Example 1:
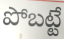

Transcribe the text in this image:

పోబట్టే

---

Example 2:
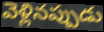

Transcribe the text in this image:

వెళ్లినప్పుడు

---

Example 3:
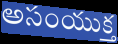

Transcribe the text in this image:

అసంయుక్త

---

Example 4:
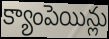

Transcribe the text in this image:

క్యాంపెయిన్లు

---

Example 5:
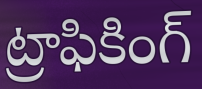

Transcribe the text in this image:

ట్రాఫికింగ్